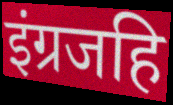
इंग्रजहि